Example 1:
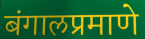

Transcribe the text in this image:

बंगालप्रमाणे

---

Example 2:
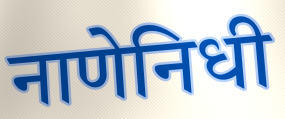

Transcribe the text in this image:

नाणेनिधी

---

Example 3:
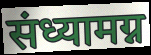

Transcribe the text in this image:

संध्यामग्न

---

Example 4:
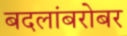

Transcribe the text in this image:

बदलांबरोबर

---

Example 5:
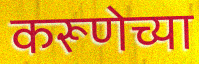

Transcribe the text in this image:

करूणेच्या